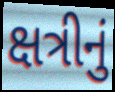
ક્ષત્રીનું